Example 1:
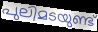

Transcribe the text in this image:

പുലിമടയുണ്ട്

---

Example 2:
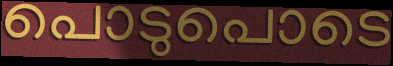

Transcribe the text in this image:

പൊടുപൊടെ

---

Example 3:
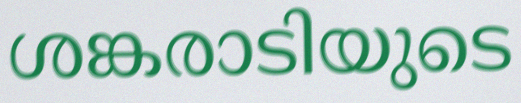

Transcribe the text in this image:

ശങ്കരാടിയുടെ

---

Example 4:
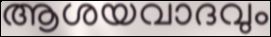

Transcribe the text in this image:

ആശയവാദവും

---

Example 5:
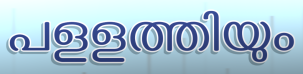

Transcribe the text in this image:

പളളത്തിയും